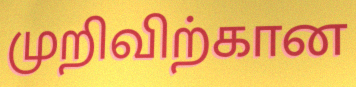
முறிவிற்கான